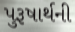
પુરૂષાર્થની